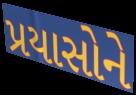
પ્રયાસોને